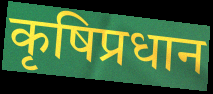
कृषिप्रधान